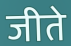
जीते